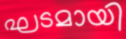
ഘടമായി